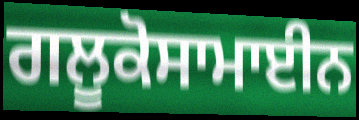
ਗਲੂਕੋਸਾਮਾਈਨ